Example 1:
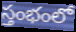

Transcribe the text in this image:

స్తంభంలో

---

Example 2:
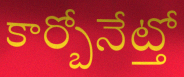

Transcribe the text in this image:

కార్బోనేట్తో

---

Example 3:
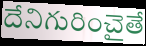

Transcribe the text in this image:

దేనిగురించైతే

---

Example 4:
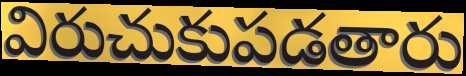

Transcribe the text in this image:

విరుచుకుపడతారు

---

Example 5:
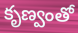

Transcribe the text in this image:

కృణ్వంతో